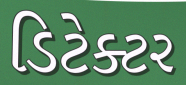
ડિટેક્ટર